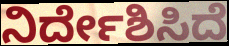
ನಿರ್ದೇಶಿಸಿದೆ